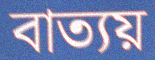
বাত্যয়